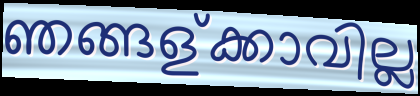
ഞങ്ങള്ക്കാവില്ല